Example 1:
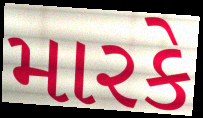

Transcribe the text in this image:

મારકે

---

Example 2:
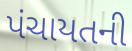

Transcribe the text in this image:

પંચાયતની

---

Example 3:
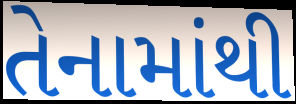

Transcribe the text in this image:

તેનામાંથી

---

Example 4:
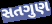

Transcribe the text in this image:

સતગુણ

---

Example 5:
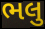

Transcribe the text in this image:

ભલુ